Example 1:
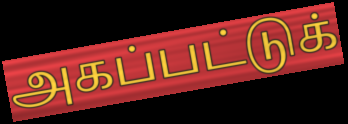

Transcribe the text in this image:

அகப்பட்டுக்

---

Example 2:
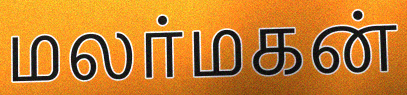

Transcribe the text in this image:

மலர்மகன்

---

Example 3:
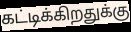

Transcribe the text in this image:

கட்டிக்கிறதுக்கு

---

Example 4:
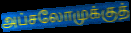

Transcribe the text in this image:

அப்சலோமுக்குத்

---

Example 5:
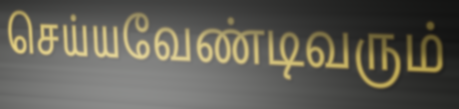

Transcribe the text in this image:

செய்யவேண்டிவரும்